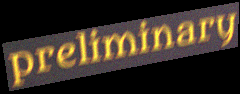
preliminary